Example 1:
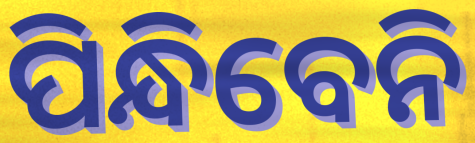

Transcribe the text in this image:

ପିନ୍ଧିବେନି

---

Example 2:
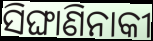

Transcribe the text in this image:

ସିଙ୍ଘାଣିନାକୀ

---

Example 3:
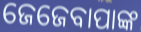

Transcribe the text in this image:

ଜେଜେବାପାଙ୍କ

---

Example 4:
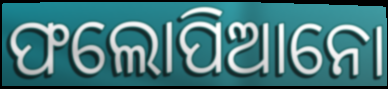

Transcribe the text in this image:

ଫଲୋପିଆନୋ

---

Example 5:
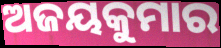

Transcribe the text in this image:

ଅଜୟକୁମାର